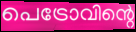
പെട്രോവിന്റെ